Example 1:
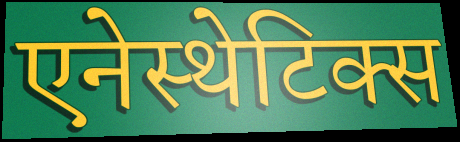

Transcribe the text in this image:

एनेस्थेटिक्स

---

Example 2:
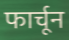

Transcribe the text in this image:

फार्चून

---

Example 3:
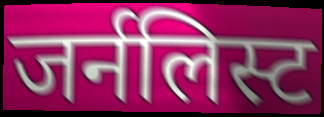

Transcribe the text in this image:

जर्नलिस्ट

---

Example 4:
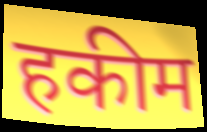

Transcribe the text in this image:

हकीम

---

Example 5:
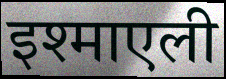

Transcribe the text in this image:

इश्माएली